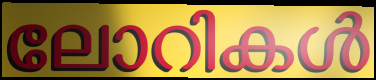
ലോറികൾ